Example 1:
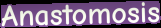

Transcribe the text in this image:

Anastomosis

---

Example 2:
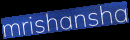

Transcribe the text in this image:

mrishansha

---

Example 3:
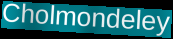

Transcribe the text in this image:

Cholmondeley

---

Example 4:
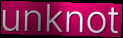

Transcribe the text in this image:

unknot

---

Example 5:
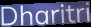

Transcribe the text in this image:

Dharitri